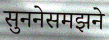
सुननेसमझने